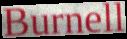
Burnell